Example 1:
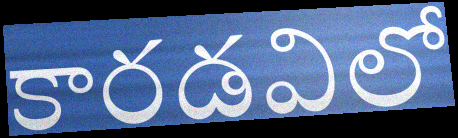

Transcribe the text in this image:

కారడవిలో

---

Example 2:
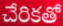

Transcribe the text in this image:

చేరికతో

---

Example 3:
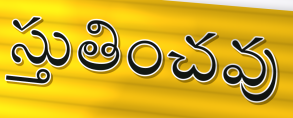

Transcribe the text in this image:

స్తుతించవు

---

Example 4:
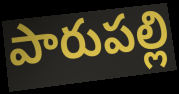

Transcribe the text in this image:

పారుపల్లి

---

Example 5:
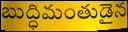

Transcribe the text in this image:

బుద్ధిమంతుడైన